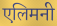
एलिमनी